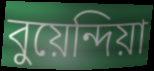
বুয়েন্দিয়া